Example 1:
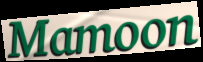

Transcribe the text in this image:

Mamoon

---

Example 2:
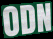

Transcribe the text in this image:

ODN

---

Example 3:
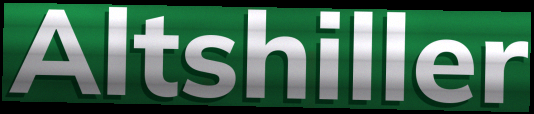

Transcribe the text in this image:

Altshiller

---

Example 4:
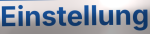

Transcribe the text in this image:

Einstellung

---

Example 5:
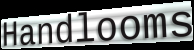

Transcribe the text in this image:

Handlooms